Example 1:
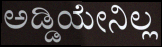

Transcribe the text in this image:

ಅಡ್ಡಿಯೇನಿಲ್ಲ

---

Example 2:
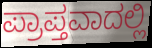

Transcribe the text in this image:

ಪ್ರಾಪ್ತವಾದಲ್ಲಿ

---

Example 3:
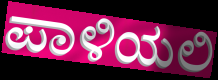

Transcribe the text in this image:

ಪಾಳಿಯಲಿ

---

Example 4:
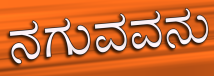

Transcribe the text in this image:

ನಗುವವನು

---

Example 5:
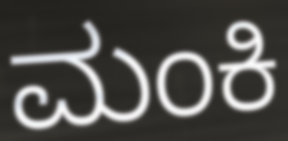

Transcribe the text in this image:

ಮಂಕಿ